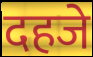
दहजे